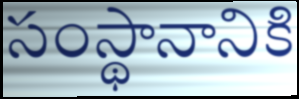
సంస్థానానికి